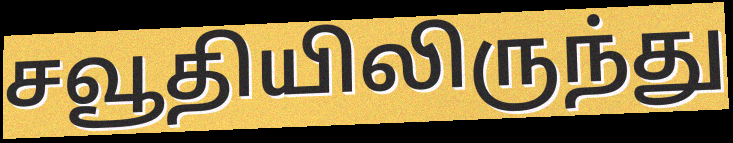
சவூதியிலிருந்து